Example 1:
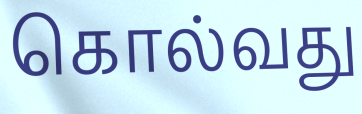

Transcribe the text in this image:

கொல்வது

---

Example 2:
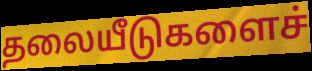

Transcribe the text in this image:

தலையீடுகளைச்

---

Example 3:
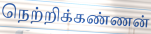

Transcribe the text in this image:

நெற்றிக்கண்ணன்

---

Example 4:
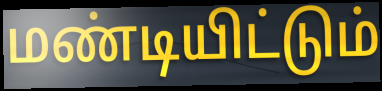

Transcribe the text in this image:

மண்டியிட்டும்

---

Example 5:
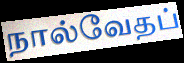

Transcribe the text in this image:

நால்வேதப்